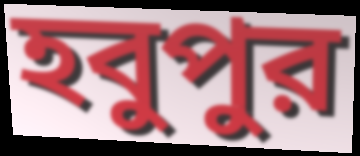
হবুপুর